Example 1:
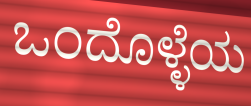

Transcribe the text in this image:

ಒಂದೊಳ್ಳೆಯ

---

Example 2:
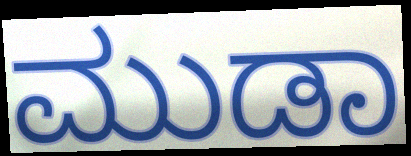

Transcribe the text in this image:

ಮುಡಾ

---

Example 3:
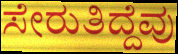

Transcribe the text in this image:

ಸೇರುತಿದ್ದೆವು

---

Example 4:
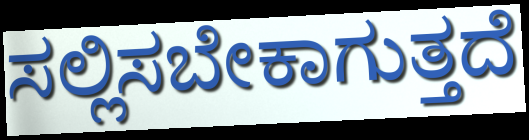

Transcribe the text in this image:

ಸಲ್ಲಿಸಬೇಕಾಗುತ್ತದೆ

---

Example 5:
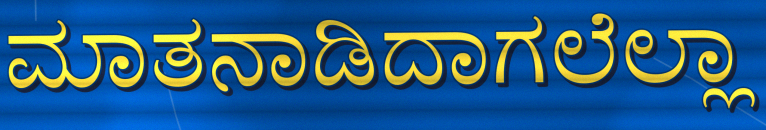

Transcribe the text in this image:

ಮಾತನಾಡಿದಾಗಲೆಲ್ಲಾ